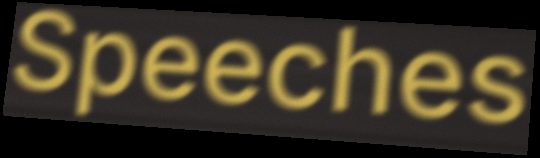
Speeches